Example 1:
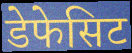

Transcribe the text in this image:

डेफेसिट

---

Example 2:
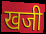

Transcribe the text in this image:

खजी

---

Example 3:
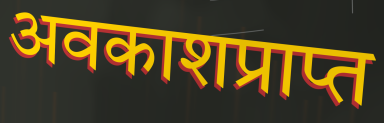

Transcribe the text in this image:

अवकाशप्राप्त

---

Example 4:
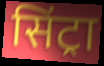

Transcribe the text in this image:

सिंट्रा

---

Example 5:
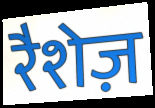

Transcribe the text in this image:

रैशेज़